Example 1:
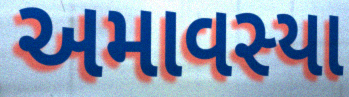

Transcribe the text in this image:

અમાવસ્યા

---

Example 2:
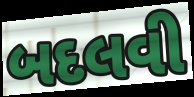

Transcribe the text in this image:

બદલવી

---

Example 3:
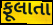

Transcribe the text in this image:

ફૂલાતા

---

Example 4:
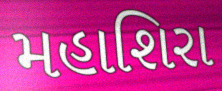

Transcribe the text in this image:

મહાશિરા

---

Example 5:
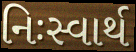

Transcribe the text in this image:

નિઃસ્વાર્થ